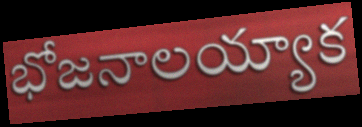
భోజనాలయ్యాక